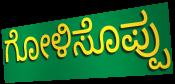
ಗೋಳಿಸೊಪ್ಪು